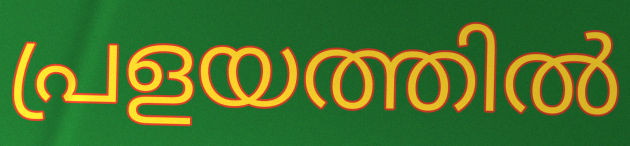
പ്രളയത്തിൽ